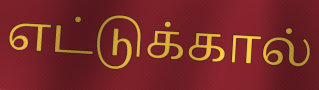
எட்டுக்கால்